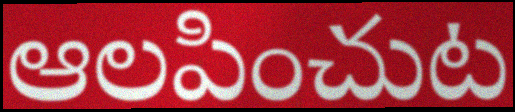
ఆలపించుట